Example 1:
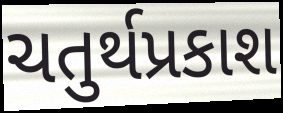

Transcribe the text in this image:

ચતુર્થપ્રકાશ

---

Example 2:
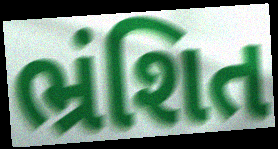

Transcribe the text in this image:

ભ્રંશિત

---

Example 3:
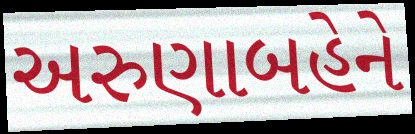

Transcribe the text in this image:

અરુણાબહેને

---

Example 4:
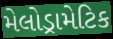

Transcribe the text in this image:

મેલોડ્રામેટિક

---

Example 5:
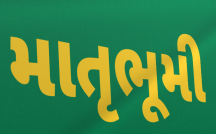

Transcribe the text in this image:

માતૃભૂમી